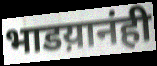
भाडय़ानंही